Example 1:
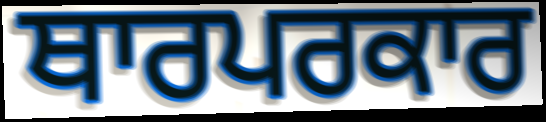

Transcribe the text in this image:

ਥਾਰਪਰਕਾਰ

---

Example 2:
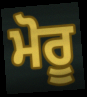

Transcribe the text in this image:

ਮੋਰੂ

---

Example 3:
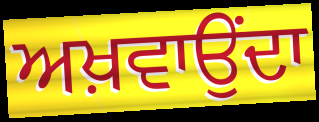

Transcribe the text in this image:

ਅਖ਼ਵਾਉਂਦਾ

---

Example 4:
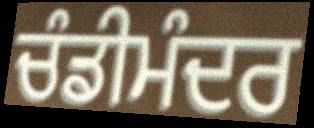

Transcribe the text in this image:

ਚੰਡੀਮੰਦਰ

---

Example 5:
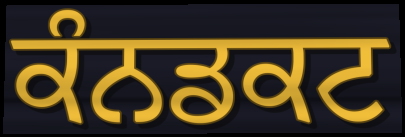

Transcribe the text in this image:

ਕੰਨਡਕਟ